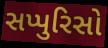
સપ્પુરિસો